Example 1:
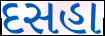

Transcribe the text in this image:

દસહા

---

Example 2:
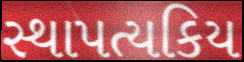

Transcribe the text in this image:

સ્થાપત્યકિય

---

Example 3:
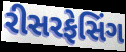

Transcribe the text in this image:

રીસરફેસિંગ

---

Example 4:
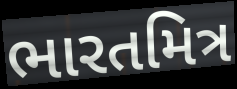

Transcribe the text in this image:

ભારતમિત્ર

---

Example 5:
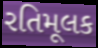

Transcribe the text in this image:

રતિમૂલક